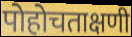
पोहोचताक्षणी